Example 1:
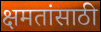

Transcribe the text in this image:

क्षमतांसाठी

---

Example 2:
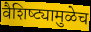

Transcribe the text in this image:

वैशिष्ट्यामुळेच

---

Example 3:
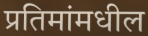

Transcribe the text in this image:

प्रतिमांमधील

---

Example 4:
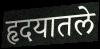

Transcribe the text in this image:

हृदयातले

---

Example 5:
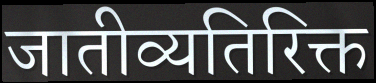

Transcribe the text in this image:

जातीव्यतिरिक्त